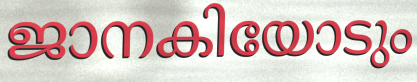
ജാനകിയോടും